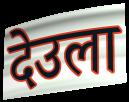
देउला